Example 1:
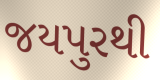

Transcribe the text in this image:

જયપુરથી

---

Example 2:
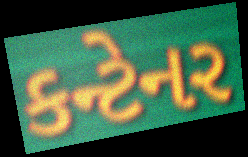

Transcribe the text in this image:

કન્ટેનર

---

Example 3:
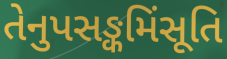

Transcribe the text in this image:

તેનુપસઙ્કમિંસૂતિ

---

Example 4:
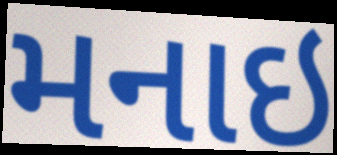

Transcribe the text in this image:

મનાઇ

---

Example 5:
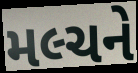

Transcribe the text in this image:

મલ્ચને